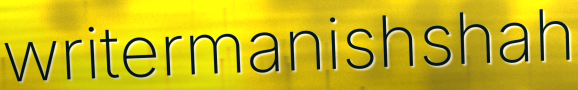
writermanishshah